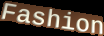
Fashion